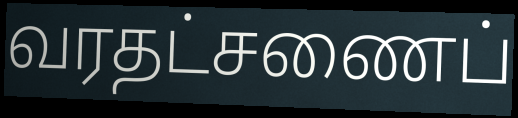
வரதட்சணைப்